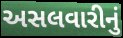
અસલવારીનું